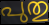
പുതു